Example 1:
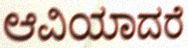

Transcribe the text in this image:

ಆವಿಯಾದರೆ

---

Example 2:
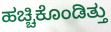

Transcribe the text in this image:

ಹಚ್ಚಿಕೊಂಡಿತ್ತು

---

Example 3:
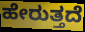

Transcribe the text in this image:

ಹೇರುತ್ತದೆ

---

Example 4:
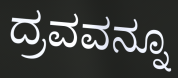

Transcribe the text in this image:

ದ್ರವವನ್ನೂ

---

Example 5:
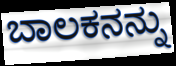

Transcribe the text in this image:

ಬಾಲಕನನ್ನು